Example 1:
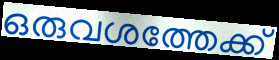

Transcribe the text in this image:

ഒരുവശത്തേക്ക്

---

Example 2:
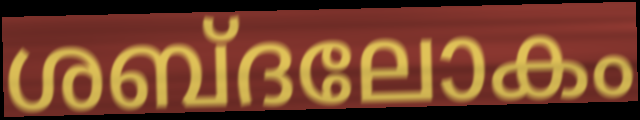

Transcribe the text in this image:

ശബ്ദലോകം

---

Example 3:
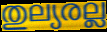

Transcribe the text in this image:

തുല്യരല്ല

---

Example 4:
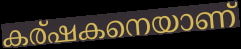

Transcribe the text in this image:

കര്ഷകനെയാണ്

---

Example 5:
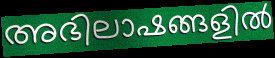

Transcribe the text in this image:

അഭിലാഷങ്ങളിൽ